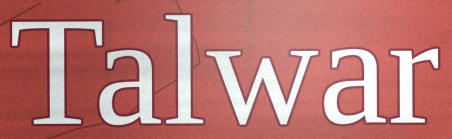
Talwar